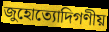
জুহোত্যোদিগণীয়